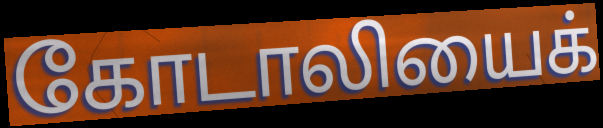
கோடாலியைக்